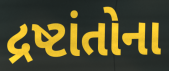
દ્રષ્ટાંતોના